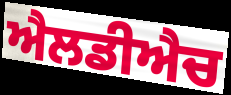
ਐਲਡੀਐਚ